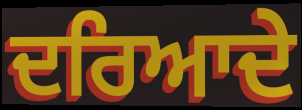
ਦਰਿਆਦੇ